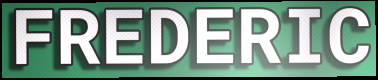
FREDERIC